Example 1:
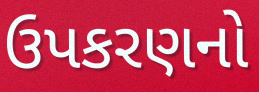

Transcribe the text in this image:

ઉપકરણનો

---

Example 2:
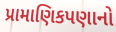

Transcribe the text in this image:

પ્રામાણિકપણાનો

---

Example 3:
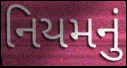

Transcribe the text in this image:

નિયમનું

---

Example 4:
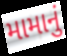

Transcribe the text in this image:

મામાનું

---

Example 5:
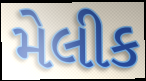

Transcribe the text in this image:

મેલીક